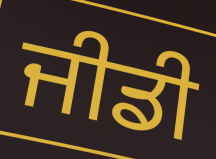
ਜੀਡੀ